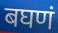
बघणं